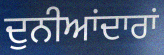
ਦੁਨੀਆਂਦਾਰਾਂ